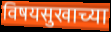
विषयसुखाच्या